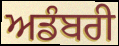
ਅਡੰਬਰੀ